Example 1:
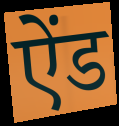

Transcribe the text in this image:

ऐंड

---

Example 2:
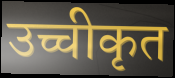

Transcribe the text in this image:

उच्चीकृत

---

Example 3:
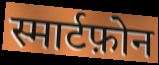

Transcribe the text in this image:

स्मार्टफ़ोन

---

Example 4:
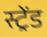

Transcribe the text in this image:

स्ट्रेंड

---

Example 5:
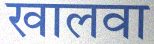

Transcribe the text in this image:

खालवा